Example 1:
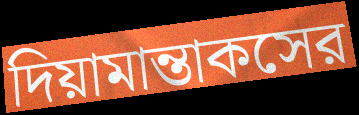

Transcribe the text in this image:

দিয়ামান্তাকসের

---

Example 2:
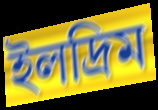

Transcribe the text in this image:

ইলদ্রিম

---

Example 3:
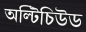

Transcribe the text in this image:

অল্টিচিউড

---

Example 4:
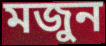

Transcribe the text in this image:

মজুন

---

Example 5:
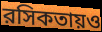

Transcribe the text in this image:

রসিকতায়ও